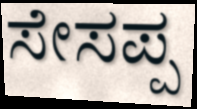
ಸೇಸಪ್ಪ